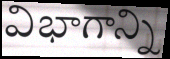
విభాగాన్ని